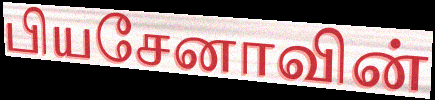
பியசேனாவின்